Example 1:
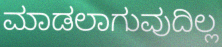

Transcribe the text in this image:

ಮಾಡಲಾಗುವುದಿಲ್ಲ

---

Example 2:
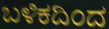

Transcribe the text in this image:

ಬಳಿಕದಿಂದ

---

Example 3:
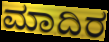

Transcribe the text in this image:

ಮಾದಿರ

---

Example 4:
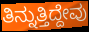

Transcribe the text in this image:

ತಿನ್ನುತ್ತಿದ್ದೇವು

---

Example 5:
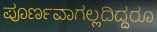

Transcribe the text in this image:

ಪೂರ್ಣವಾಗಲ್ಲದಿದ್ದರೂ